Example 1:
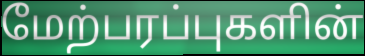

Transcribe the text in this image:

மேற்பரப்புகளின்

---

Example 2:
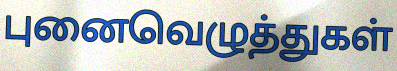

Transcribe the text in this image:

புனைவெழுத்துகள்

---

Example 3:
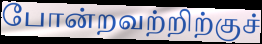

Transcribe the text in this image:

போன்றவற்றிற்குச்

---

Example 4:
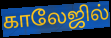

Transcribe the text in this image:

காலேஜில்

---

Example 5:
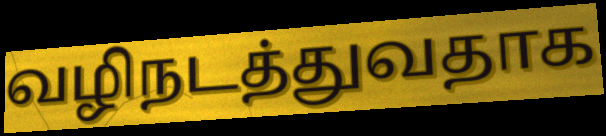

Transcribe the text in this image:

வழிநடத்துவதாக